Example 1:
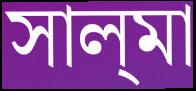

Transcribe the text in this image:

সাল্‌মা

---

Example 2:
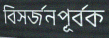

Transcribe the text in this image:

বিসর্জনপূর্বক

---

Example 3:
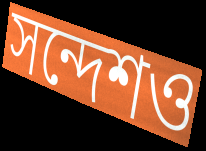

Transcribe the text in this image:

সন্দেশও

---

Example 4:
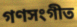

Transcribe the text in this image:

গণসংগীত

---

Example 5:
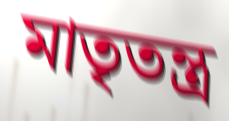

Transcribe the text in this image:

মাতৃতন্ত্র